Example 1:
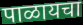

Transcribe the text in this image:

पाळायचा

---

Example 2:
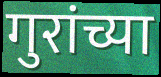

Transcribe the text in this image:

गुरांच्या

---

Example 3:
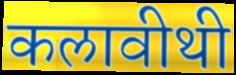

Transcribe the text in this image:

कलावीथी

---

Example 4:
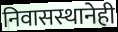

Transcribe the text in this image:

निवासस्थानेही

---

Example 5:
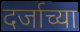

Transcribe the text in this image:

दर्जाच्या